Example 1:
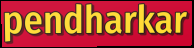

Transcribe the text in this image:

pendharkar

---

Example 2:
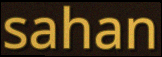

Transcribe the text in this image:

sahan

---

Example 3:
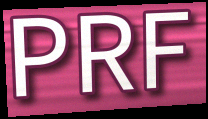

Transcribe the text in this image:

PRF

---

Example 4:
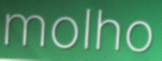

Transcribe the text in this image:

molho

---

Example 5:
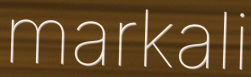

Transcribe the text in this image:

markali